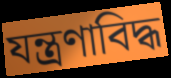
যন্ত্রণাবিদ্ধ